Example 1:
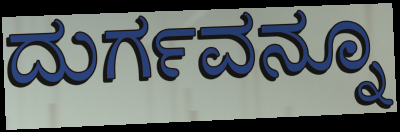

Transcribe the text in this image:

ದುರ್ಗವನ್ನೂ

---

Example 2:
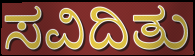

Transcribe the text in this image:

ಸವಿದಿತು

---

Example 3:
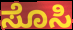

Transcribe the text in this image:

ಸೊಸಿ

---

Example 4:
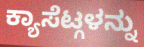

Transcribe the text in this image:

ಕ್ಯಾಸೆಟ್ಗಳನ್ನು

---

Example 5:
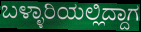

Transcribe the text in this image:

ಬಳ್ಳಾರಿಯಲ್ಲಿದ್ದಾಗ